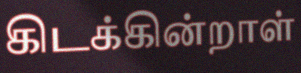
கிடக்கின்றாள்